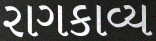
રાગકાવ્ય